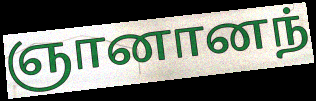
ஞானானந்